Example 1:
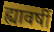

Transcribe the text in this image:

ह्यावर्षी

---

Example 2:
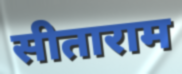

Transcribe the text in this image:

सीताराम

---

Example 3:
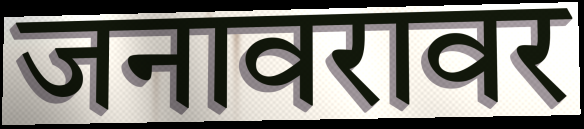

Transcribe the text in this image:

जनावरावर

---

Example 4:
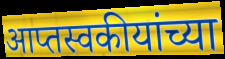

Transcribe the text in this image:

आप्तस्वकीयांच्या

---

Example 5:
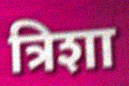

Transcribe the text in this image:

त्रिशा